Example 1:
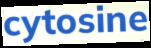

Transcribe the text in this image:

cytosine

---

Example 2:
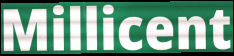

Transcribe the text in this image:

Millicent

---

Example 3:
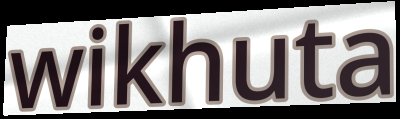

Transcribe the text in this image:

wikhuta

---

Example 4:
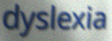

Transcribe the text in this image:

dyslexia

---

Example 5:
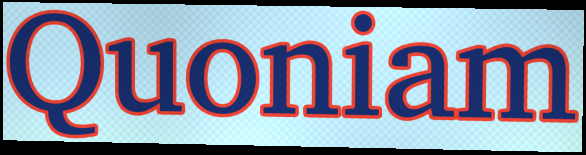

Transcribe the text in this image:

Quoniam